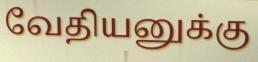
வேதியனுக்கு